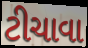
ટીચાવા